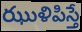
ఝుళిపిస్తే